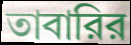
তাবারির